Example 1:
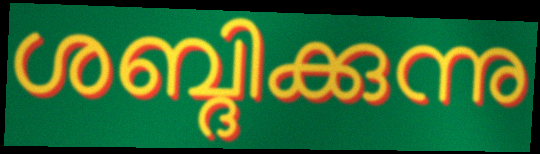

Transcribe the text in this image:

ശബ്ദിക്കുന്നു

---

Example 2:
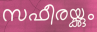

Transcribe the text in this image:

സഫീരയ്ക്കും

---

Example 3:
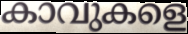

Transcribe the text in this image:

കാവുകളെ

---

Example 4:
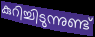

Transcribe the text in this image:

കുറിച്ചിടുന്നുണ്ട്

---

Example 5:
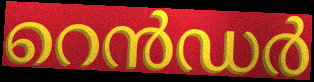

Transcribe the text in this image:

റെൻഡർ